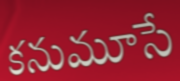
కనుమూసే